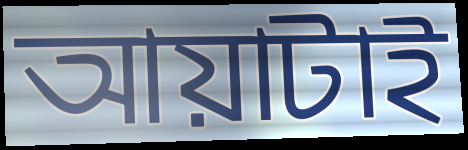
আয়াটাই